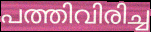
പത്തിവിരിച്ച